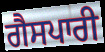
ਗੈਸਪਾਰੀ